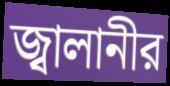
জ্বালানীর